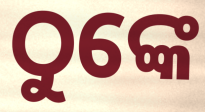
ଠୁଙ୍କେ